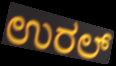
ಉರಲ್